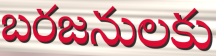
బరజనులకు